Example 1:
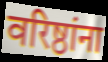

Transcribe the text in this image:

वरिष्ठांना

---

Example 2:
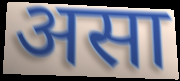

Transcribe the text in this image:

असा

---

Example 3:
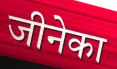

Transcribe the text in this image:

जीनेका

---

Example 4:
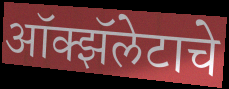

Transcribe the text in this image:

ऑक्झॅलेटाचे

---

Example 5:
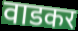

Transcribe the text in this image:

वाडकर